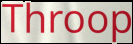
Throop